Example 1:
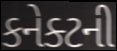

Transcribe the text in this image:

કનેક્ટની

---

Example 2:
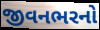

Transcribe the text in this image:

જીવનભરનો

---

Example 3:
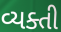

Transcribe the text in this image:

વ્યક્તી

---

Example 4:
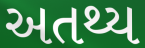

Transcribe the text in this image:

અતથ્ય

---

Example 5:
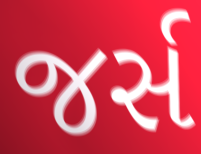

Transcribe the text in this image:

જર્સ